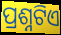
ପ୍ରଶ୍ନଟିଏ